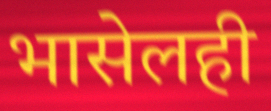
भासेलही